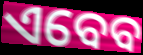
ଏବେବ